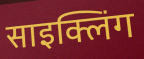
साइक्लिंग